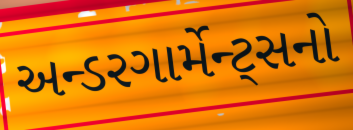
અન્ડરગાર્મેન્ટ્સનો